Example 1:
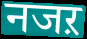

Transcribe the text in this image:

नजऱ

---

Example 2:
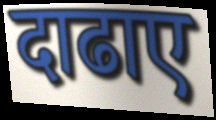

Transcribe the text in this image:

दाढाए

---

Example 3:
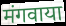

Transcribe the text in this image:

मंगवाया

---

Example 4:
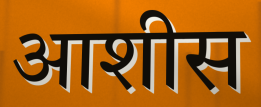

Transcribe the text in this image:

आशीस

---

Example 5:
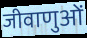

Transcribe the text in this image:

जीवाणुओं